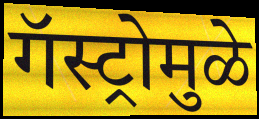
गॅस्ट्रोमुळे